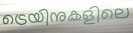
ട്രെയിനുകളിലെ